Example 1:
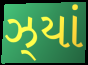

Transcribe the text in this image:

ઝ્યાં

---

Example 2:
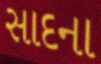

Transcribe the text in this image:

સાદના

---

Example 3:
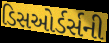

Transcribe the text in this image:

ડિસઓર્ડર્સની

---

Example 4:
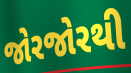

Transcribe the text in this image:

જોરજોરથી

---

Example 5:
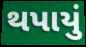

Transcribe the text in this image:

થપાયું